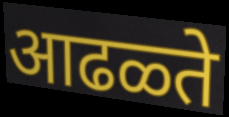
आढळ्ते